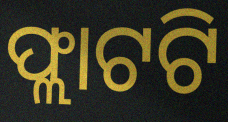
ଫ୍ଲାଟଟି